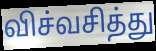
விச்வசித்து